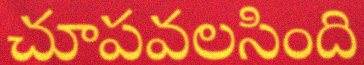
చూపవలసింది